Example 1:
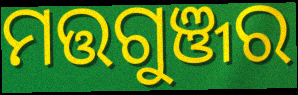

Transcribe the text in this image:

ମତ୍ତଗୁଞ୍ଜର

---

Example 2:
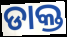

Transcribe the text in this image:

ଡାକ୍ତ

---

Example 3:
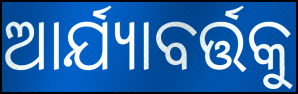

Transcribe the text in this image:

ଆର୍ଯ୍ୟାବର୍ତ୍ତକୁ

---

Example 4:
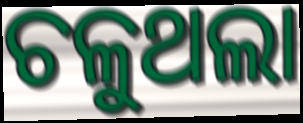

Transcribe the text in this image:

ଚଳୁଥଲା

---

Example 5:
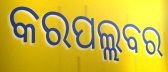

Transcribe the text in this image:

କରପଲ୍ଲବର